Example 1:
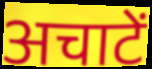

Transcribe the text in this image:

अचाटें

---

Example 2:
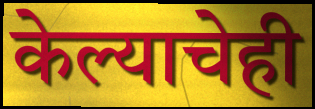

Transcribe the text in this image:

केल्याचेही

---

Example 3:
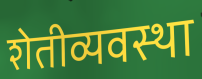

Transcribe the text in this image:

शेतीव्यवस्था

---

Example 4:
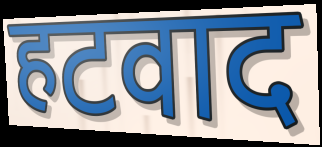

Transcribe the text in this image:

हटवाद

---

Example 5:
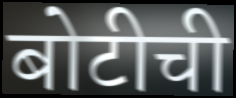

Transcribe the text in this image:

बोटीची